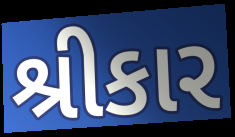
શ્રીકાર